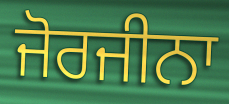
ਜੋਰਜੀਨਾ